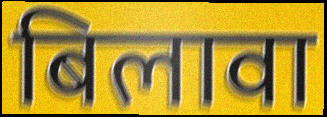
बिलावा